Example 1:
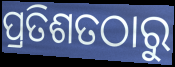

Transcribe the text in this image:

ପ୍ରତିଶତଠାରୁ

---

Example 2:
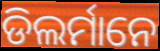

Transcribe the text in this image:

ଡିଲର୍ମାନେ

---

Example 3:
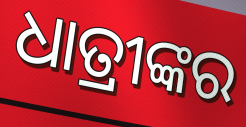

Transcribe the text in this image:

ଧାତ୍ରୀଙ୍କର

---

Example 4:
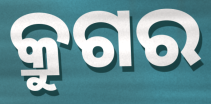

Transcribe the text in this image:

କ୍ରୁଗର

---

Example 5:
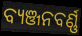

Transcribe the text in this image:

ବ୍ୟଞ୍ଜନବର୍ଣ୍ଣ